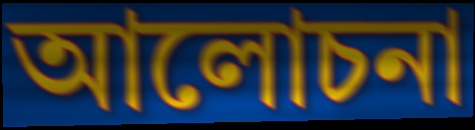
আলোচনা